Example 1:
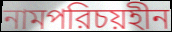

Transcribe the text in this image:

নামপরিচয়হীন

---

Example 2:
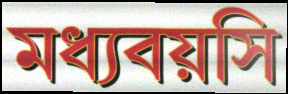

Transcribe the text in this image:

মধ্যবয়সি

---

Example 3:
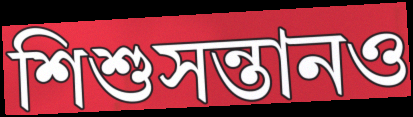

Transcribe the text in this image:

শিশুসন্তানও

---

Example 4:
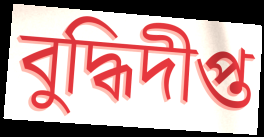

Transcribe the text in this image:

বুদ্ধিদীপ্ত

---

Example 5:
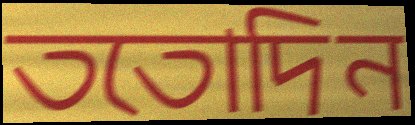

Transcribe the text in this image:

ততোদিন